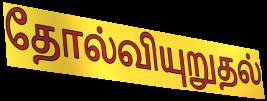
தோல்வியுறுதல்